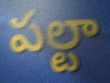
పల్టా